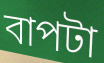
বাপটা